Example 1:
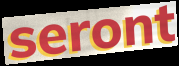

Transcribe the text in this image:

seront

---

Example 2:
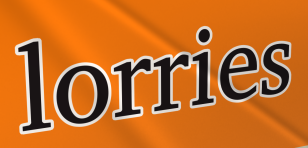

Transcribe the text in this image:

lorries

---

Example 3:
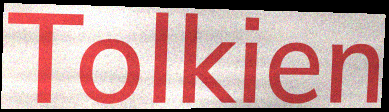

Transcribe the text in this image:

Tolkien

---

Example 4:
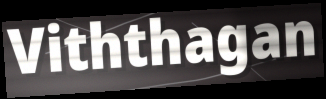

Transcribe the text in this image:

Viththagan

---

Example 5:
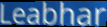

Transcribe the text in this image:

Leabhar